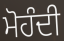
ਮੋਹੰਦੀ